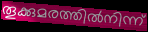
തൂക്കുമരത്തിൽനിന്ന്